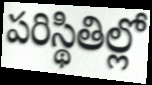
పరిస్థితిల్లో